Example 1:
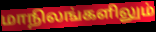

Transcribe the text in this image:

மாநிலங்களிலும்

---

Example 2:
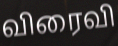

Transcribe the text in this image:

விரைவி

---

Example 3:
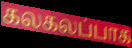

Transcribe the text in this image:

கலகலப்பாக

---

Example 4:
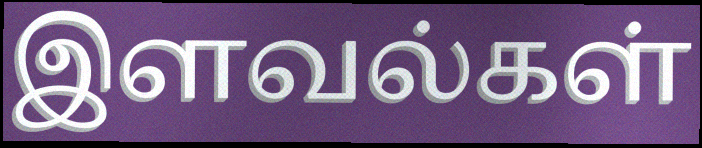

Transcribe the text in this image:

இளவல்கள்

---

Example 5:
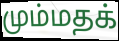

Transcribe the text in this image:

மும்மதக்